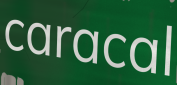
caracal